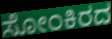
ಸೋಂಕಿರದ